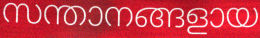
സന്താനങ്ങളായ